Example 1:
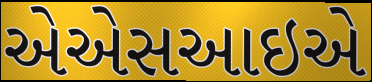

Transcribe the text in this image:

એએસઆઇએ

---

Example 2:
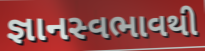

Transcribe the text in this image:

જ્ઞાનસ્વભાવથી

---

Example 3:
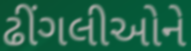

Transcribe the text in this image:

ઢીંગલીઓને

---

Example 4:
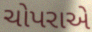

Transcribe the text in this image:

ચોપરાએ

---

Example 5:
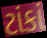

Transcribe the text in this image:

ટાંકાં